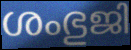
ശംഭുജി